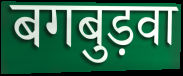
बगबुड़वा